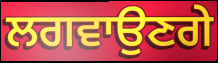
ਲਗਵਾਉਣਗੇ